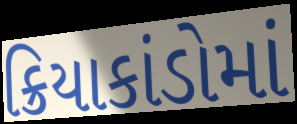
ક્રિયાકાંડોમાં